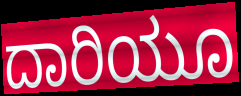
ದಾರಿಯೂ